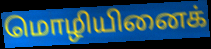
மொழியினைக்